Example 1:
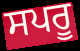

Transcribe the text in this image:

ਸਪਰੂ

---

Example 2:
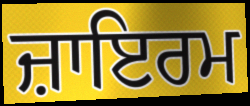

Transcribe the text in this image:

ਜ਼ਾਇਰਮ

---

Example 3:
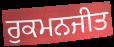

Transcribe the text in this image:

ਰੁਕਮਨਜੀਤ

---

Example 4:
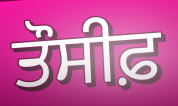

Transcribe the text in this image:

ਤੌਸੀਫ਼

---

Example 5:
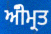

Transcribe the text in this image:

ਅੰੀਮ੍ਰਤ